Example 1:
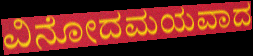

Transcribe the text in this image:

ವಿನೋದಮಯವಾದ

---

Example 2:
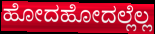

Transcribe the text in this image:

ಹೋದಹೋದಲ್ಲೆಲ್ಲ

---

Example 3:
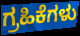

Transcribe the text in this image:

ಗ್ರಹಿಕೆಗಳು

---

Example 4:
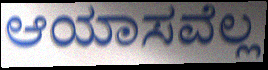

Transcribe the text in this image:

ಆಯಾಸವೆಲ್ಲ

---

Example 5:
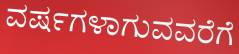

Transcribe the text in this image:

ವರ್ಷಗಳಾಗುವವರೆಗೆ